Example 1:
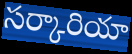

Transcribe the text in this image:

సర్కారియా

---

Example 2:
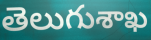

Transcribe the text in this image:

తెలుగుశాఖ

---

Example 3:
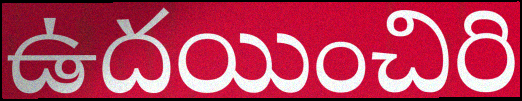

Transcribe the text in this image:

ఉదయించిరి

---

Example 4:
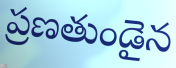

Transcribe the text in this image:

ప్రణతుండైన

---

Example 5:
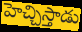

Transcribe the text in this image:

హెచ్చిస్తాడు